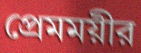
প্রেমময়ীর